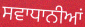
ਸਵਾਧਾਨੀਆਂ